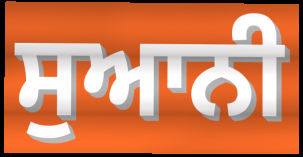
ਸੁਆਨੀ